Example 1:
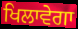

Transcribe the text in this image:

ਖਿਲਾਵੇਗਾ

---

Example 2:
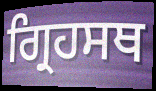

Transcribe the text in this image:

ਗ੍ਰਿਹਸਥ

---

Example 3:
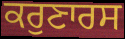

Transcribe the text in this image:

ਕਰੁਣਾਰਸ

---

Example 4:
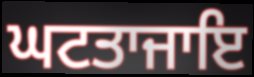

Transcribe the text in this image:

ਘਟਤਾਜਾਇ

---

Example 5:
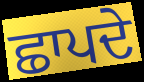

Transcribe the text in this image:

ਛਾਪਦੇ